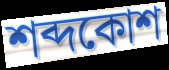
শব্দকোশ